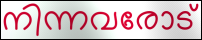
നിന്നവരോട്